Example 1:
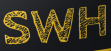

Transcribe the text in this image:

SWH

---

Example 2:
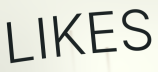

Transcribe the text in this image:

LIKES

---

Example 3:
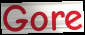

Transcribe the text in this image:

Gore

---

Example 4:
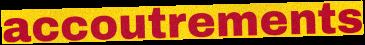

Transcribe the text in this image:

accoutrements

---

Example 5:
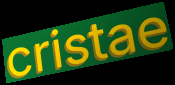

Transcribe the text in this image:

cristae